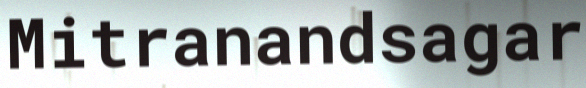
Mitranandsagar